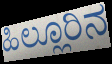
ಹಿಲ್ಲೂರಿನ